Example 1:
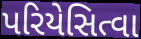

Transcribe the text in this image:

પરિયેસિત્વા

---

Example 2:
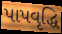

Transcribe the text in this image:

પાપવૃદ્ધિ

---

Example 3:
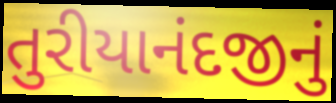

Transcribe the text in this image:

તુરીયાનંદજીનું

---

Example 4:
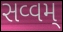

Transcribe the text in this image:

સવ્વમ્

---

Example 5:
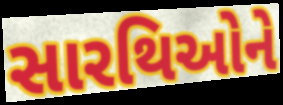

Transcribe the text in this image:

સારથિઓને